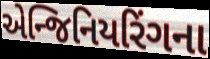
એન્જિનિયરિંગના